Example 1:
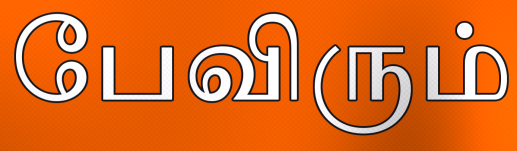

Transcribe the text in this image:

பேவிரும்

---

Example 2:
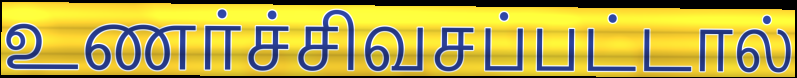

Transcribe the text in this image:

உணர்ச்சிவசப்பட்டால்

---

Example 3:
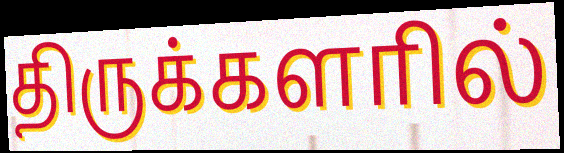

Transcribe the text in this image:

திருக்களரில்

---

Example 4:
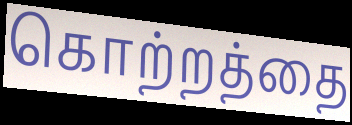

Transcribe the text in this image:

கொற்றத்தை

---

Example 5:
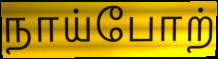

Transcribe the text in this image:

நாய்போற்